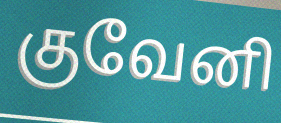
குவேனி